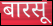
बारसू